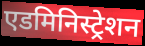
एडमिनिस्ट्रेशन